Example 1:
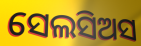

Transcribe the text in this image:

ସେଲସିଅସ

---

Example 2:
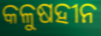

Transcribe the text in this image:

କଳୁଷହୀନ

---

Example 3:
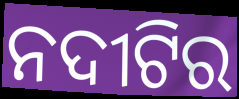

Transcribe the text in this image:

ନଦୀଟିର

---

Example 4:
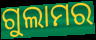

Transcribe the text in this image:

ଗୁଲାମର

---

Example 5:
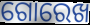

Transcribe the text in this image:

ଗୋରେଖ